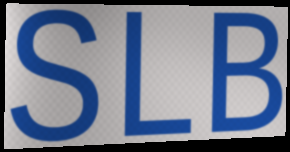
SLB